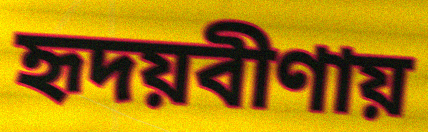
হৃদয়বীণায়